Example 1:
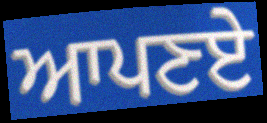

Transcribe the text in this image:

ਆਪਣਏ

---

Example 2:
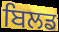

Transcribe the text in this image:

ਬਿਲਡ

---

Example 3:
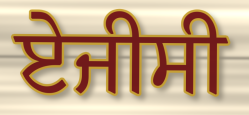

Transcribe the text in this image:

ਏਜੀਸੀ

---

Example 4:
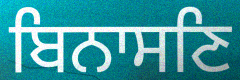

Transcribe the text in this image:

ਬਿਨਾਸਣਿ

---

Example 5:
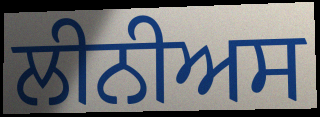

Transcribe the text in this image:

ਲੀਨੀਅਸ